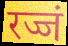
रज्जं